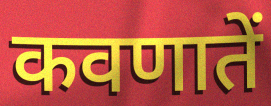
कवणातें